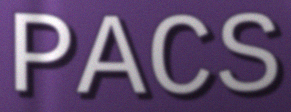
PACS